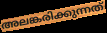
അലങ്കരിക്കുന്നത്